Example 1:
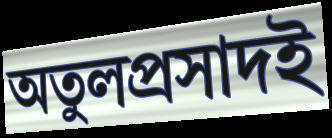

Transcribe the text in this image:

অতুলপ্রসাদই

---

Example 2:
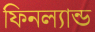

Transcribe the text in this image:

ফিনল্যান্ড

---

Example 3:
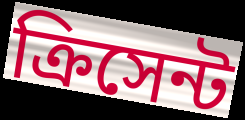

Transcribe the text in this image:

ক্রিসেন্ট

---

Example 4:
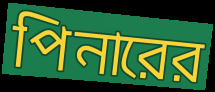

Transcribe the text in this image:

পিনারের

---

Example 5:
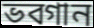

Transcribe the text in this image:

ভবগান